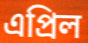
এপ্ৰিল